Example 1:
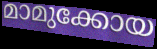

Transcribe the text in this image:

മാമുക്കോയ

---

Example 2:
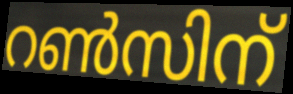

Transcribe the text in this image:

റൺസിന്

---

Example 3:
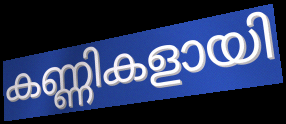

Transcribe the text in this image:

കണ്ണികളായി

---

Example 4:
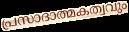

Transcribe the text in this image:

പ്രസാദാത്മകത്വവും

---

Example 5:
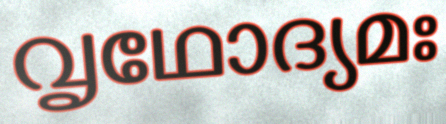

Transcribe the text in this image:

വൃഥോദ്യമഃ